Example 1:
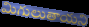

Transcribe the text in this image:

మిగులుతాయని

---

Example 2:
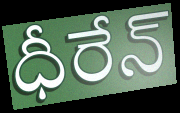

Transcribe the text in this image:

ధీరేన్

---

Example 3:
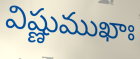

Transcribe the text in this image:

విష్ణుముఖాః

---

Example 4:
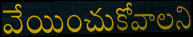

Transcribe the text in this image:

వేయించుకోవాలని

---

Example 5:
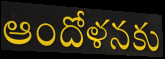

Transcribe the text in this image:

ఆందోళనకు